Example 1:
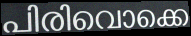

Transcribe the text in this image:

പിരിവൊക്കെ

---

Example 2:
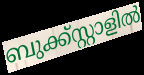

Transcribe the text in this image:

ബുക്ക്സ്റ്റാളിൽ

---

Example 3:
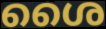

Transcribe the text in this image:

ശൈ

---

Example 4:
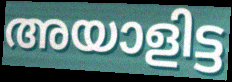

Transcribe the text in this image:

അയാളിട്ട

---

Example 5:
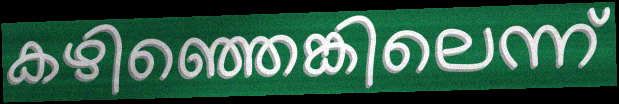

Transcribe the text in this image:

കഴിഞ്ഞെങ്കിലെന്ന്